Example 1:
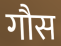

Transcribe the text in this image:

गौस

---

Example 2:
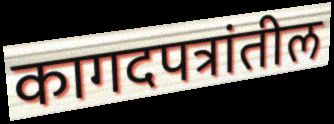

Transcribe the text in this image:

कागदपत्रांतील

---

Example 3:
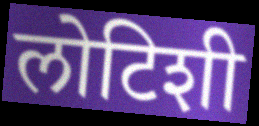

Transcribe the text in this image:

लोटिशी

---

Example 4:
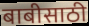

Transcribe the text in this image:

बाबीसाठी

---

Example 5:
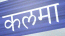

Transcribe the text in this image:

कलमा